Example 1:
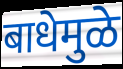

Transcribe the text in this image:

बाधेमुळे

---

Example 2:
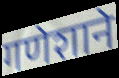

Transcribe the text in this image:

गणेशाने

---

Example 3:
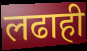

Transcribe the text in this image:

लढाही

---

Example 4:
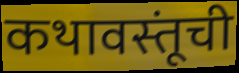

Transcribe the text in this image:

कथावस्तूंची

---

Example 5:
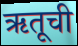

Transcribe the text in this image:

ऋतूची